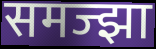
समज्झा